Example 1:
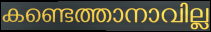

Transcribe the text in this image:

കണ്ടെത്താനാവില്ല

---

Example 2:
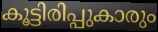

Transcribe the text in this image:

കൂട്ടിരിപ്പുകാരും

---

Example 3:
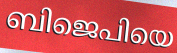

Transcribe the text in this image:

ബിജെപിയെ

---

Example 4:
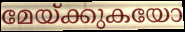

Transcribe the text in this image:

മേയ്ക്കുകയോ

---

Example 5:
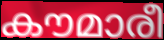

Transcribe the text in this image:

കൗമാരീ